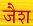
जैश